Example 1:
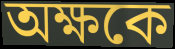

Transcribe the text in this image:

অক্ষকে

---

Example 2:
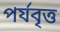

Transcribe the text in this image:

পর্যবৃত্ত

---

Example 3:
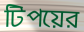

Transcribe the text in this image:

টিপয়ের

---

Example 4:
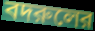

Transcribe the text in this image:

বদরুলের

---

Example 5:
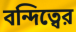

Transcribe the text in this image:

বন্দিত্বের